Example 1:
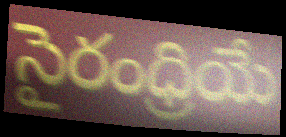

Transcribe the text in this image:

సైరంధ్రియే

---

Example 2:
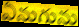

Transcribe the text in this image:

ఏనుగును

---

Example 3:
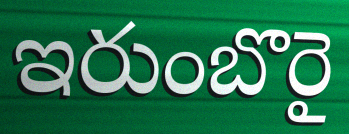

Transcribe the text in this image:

ఇరుంబొరై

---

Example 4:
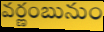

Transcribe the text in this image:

వర్ణంబునుం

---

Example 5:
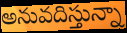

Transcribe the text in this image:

అనువదిస్తున్నా